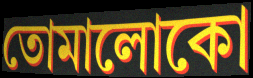
তোমালোকো